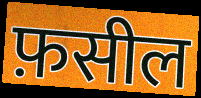
फ़सील